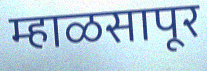
म्हाळसापूर